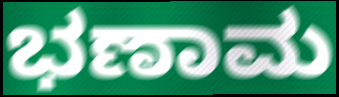
ಭಣಾಮ